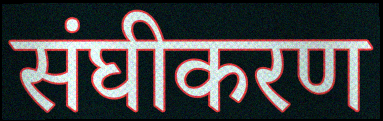
संघीकरण